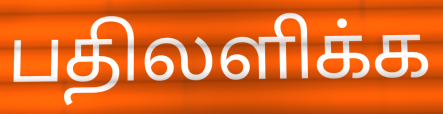
பதிலளிக்க